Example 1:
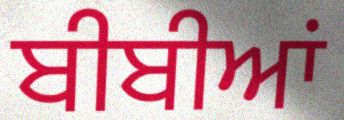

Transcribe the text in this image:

ਬੀਬੀਆਂ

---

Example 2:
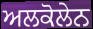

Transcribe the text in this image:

ਅਲਕੋਲੇਨ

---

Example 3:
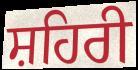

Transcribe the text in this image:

ਸ਼ਹਿਰੀ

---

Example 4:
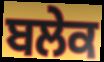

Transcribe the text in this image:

ਬਲੇਕ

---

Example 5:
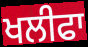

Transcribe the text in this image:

ਖਲੀਫਾ